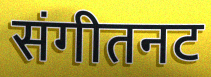
संगीतनट